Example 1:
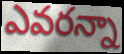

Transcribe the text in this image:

ఎవరన్నా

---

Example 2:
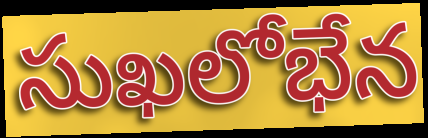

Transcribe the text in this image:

సుఖలోభేన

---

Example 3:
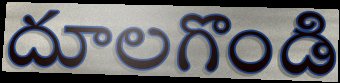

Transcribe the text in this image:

దూలగొండి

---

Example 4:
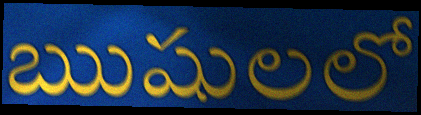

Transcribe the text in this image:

ఋషులలో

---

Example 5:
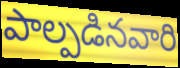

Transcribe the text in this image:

పాల్పడినవారి